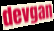
devgan